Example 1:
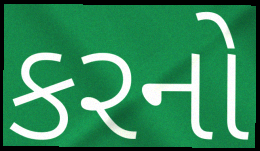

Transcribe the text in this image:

કરનો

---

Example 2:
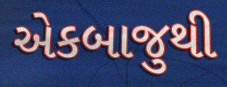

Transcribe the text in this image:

એકબાજુથી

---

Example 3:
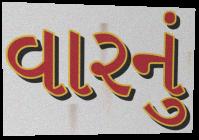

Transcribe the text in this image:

વારનું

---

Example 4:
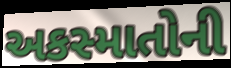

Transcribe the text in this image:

અકસ્માતોની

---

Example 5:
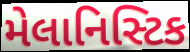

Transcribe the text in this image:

મેલાનિસ્ટિક